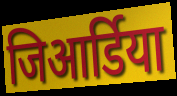
जिआर्डिया